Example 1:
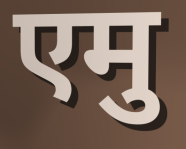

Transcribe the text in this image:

एमु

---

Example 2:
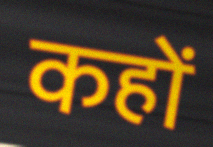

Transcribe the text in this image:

कहों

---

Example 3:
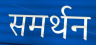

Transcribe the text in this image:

समर्थन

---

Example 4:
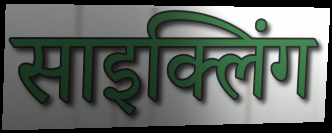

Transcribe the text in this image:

साइक्लिंग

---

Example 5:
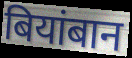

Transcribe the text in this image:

बियांबान